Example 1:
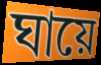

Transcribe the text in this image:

ঘায়ে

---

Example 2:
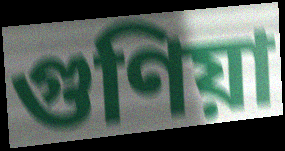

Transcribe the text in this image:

গুণিয়া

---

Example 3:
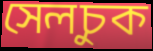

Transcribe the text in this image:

সেলচুক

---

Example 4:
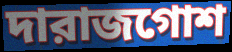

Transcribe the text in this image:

দারাজগোশ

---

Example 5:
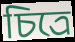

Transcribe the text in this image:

চিত্রে